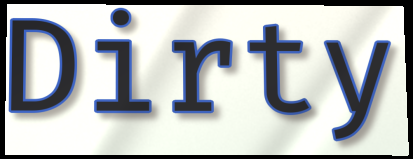
Dirty